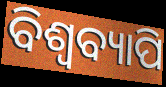
ବିଶ୍ବବ୍ୟାପି